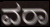
ವರಾ